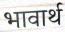
भावार्थ